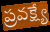
ప్రవక్ష్యే